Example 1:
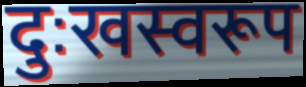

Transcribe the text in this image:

दुःखस्वरूप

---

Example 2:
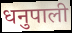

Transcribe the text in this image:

धनुपाली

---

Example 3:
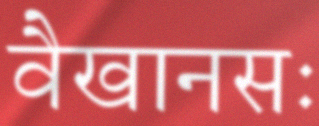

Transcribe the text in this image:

वैखानसः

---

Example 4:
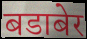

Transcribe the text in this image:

बडाबेर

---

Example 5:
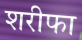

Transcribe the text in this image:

शरीफा